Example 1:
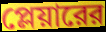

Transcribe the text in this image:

প্লেয়ারের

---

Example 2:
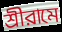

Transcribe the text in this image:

শ্রীরামে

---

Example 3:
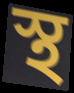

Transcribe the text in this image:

স্থ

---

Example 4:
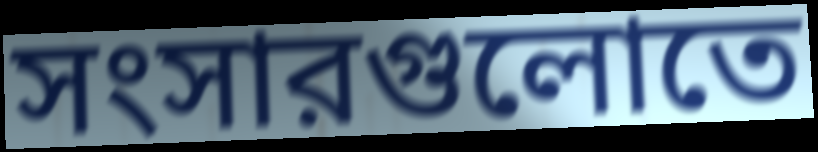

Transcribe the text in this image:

সংসারগুলোতে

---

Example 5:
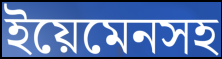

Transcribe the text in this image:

ইয়েমেনসহ